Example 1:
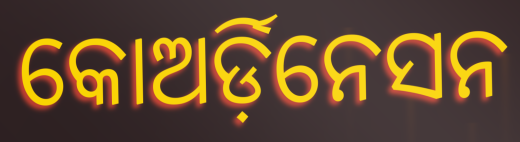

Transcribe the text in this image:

କୋଅର୍ଡ଼ିନେସନ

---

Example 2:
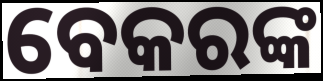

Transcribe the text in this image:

ବେକରଙ୍କ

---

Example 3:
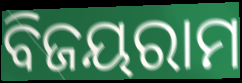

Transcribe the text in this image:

ବିଜୟରାମ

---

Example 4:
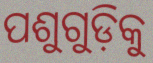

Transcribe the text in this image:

ପଶୁଗୁଡ଼ିକୁ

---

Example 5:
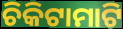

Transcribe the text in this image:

ଚିକିଟାମାଟି